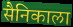
सैनिकाला